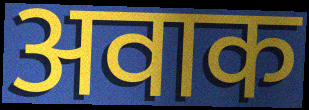
अवाक